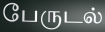
பேருடல்